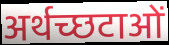
अर्थच्छटाओं